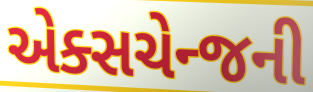
એક્સચેન્જની